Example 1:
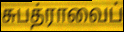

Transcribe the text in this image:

சுபத்ராவைப்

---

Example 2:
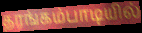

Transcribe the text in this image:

தரங்கம்பாடியில்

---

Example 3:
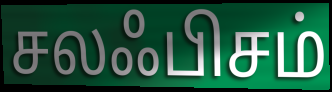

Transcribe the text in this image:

சலஃபிசம்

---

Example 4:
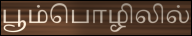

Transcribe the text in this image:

பூம்பொழிலில்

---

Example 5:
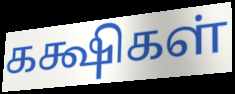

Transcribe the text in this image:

கக்ஷிகள்